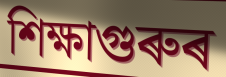
শিক্ষাগুৰুৰ